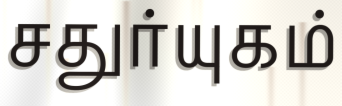
சதுர்யுகம்